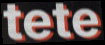
tete